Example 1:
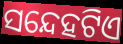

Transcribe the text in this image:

ସନ୍ଦେହଟିଏ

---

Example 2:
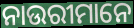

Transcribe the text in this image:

ନାଉରୀମାନେ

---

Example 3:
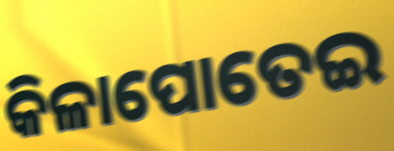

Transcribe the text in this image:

କିଳାପୋତେଇ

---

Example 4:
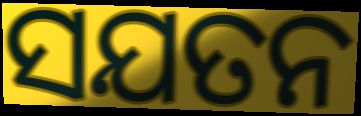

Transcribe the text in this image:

ସଯତନ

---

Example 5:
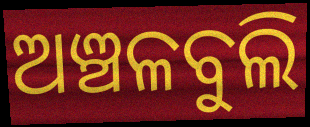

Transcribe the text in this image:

ଅଞ୍ଚଳବୁଲି